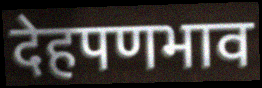
देहपणभाव